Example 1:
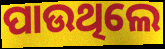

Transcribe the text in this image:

ପାଉଥିଲେ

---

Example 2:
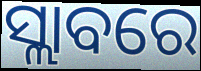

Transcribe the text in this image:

ସ୍ଲାବରେ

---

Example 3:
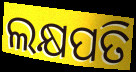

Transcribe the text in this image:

ଲକ୍ଷପତି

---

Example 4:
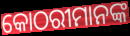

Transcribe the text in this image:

କୋଠରୀମାନଙ୍କ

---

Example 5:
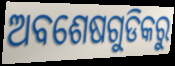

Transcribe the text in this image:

ଅବଶେଷଗୁଡିକରୁ